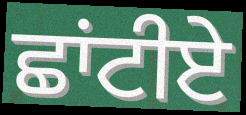
ਛਾਂਟੀਏ